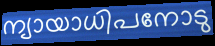
ന്യായാധിപനോടു